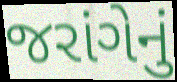
જરાંગેનું